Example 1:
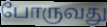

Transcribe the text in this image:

போருவது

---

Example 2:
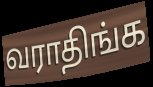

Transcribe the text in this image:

வராதிங்க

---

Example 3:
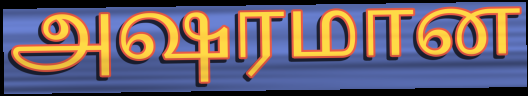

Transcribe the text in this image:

அஷரமான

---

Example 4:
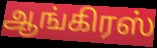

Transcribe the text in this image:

ஆங்கிரஸ்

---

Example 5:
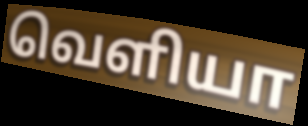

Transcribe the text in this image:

வெளியா